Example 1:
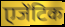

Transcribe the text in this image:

एजेंटिक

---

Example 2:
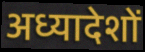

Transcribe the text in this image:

अध्यादेशों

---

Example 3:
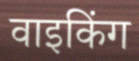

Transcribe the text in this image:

वाइकिंग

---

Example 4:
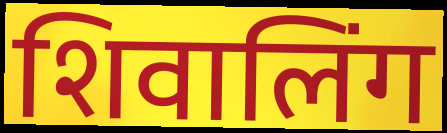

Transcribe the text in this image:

शिवालिंग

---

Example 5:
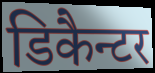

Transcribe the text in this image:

डिकैन्टर